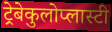
ट्रेबेकुलोप्लास्टी